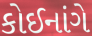
કોઈનાંગે